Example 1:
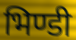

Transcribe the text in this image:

भिण्डी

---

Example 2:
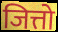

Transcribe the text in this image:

जित्तो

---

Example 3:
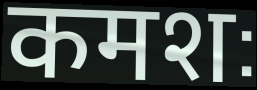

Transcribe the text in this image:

कमशः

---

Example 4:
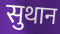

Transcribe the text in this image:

सुथान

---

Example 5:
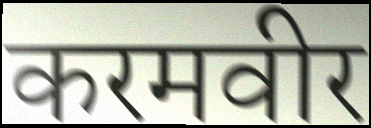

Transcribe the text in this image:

करमवीर